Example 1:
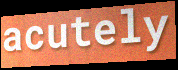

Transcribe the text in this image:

acutely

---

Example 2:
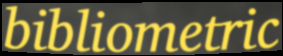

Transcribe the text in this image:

bibliometric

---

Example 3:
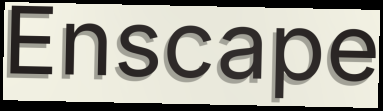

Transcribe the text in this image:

Enscape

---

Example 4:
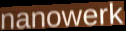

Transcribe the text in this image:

nanowerk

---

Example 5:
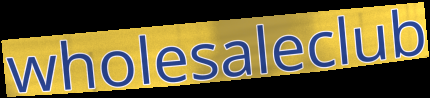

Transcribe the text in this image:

wholesaleclub